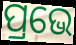
ପ୍ରଭେ